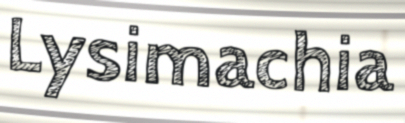
Lysimachia